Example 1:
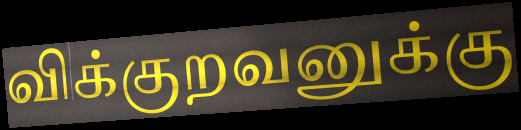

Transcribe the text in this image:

விக்குறவனுக்கு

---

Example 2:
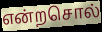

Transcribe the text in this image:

என்றசொல்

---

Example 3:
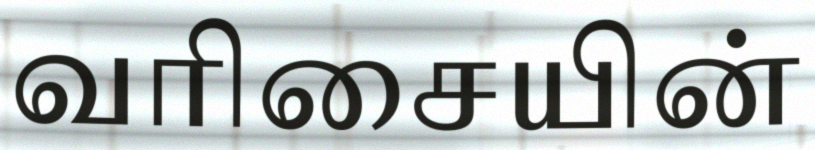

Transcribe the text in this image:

வரிசையின்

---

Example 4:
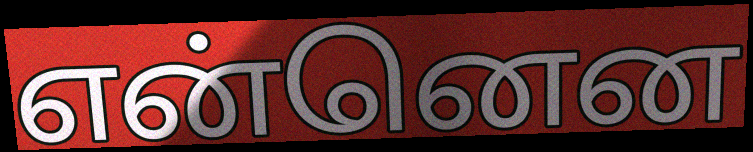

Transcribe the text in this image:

என்னென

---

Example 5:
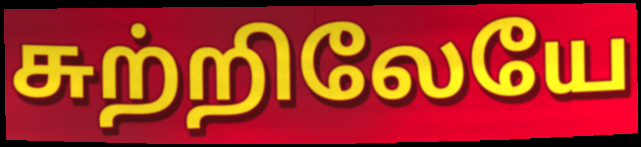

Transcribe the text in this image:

சுற்றிலேயே